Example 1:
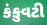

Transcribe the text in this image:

કંકુવટી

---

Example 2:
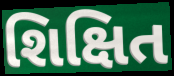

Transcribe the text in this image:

શિક્ષિત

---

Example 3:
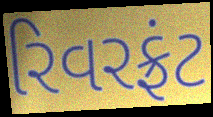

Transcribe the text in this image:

રિવરફ્રંટ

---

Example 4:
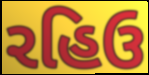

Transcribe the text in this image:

રહિઉ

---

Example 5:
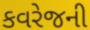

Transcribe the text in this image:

કવરેજની